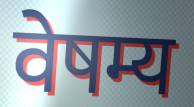
वेषम्य